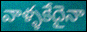
వాళ్ళకేదైనా